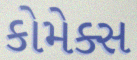
કોમેક્સ